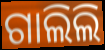
ଗାଲିଲି